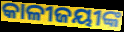
କାଳୀଜୟୀଙ୍କ